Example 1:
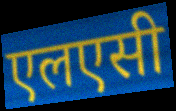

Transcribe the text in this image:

एलएसी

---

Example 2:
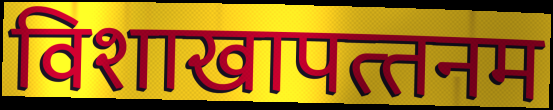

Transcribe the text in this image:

विशाखापत्‍तनम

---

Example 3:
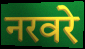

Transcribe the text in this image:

नरवरे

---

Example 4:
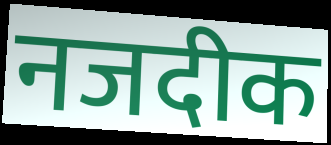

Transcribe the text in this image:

नजदीक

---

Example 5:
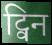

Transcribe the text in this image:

ट्विन